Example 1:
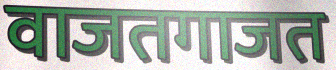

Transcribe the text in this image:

वाजतगाजत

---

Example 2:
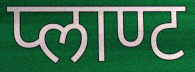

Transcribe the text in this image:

प्लाण्ट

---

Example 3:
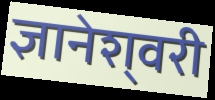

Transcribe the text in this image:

ज्ञानेश्वरी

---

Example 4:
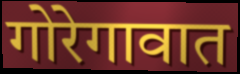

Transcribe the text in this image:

गोरेगावात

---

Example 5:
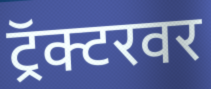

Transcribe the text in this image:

ट्रॅक्टरवर